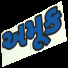
અમૂક